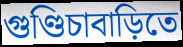
গুণ্ডিচাবাড়িতে